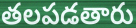
తలపడతారు